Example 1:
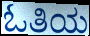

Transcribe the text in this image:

ಓತಿಯ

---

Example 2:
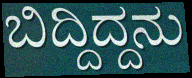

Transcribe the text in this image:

ಬಿದ್ದಿದ್ದನು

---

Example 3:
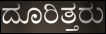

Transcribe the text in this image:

ದೂರಿತ್ತರು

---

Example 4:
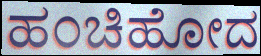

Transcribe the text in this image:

ಹಂಚಿಹೋದ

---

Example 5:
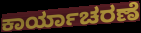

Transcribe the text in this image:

ಕಾರ್ಯಾಚರಣೆ